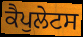
ਕੈਪੁਲੇਟਸ